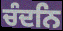
ਚੰਦਨਿ